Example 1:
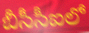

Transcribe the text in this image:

బీసీసీఐలో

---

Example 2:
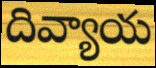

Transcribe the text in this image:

దివ్యాయ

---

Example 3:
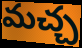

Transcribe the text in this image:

మచ్చ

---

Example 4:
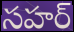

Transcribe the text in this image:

సహర్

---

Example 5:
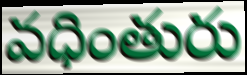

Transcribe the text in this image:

వధింతురు